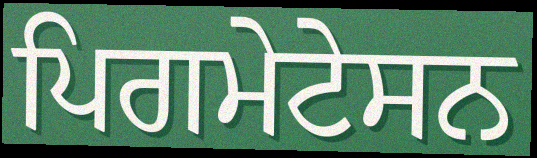
ਪਿਗਮੇਟੇਸਨ